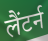
लैंटर्न